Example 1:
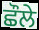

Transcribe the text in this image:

ਛੌਲੇ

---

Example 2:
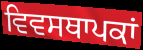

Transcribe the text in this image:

ਵਿਵਸਥਾਪਕਾਂ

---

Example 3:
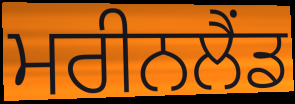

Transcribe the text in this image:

ਮਰੀਨਲੈਂਡ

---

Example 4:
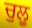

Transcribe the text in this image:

ਚੁਲੂ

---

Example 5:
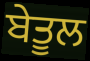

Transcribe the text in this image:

ਬੇਤੂਲ